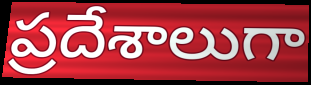
ప్రదేశాలుగా